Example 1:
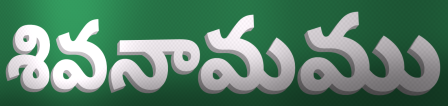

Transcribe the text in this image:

శివనామము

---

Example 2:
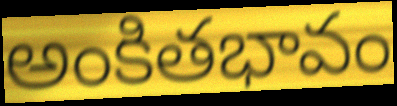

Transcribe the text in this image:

అంకితభావం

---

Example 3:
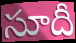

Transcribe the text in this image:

సూదీ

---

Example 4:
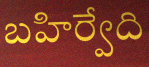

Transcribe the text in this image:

బహిర్వేది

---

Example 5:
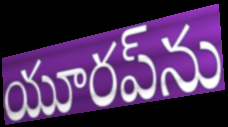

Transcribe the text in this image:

యూరప్‌ను